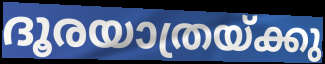
ദൂരയാത്രയ്ക്കു